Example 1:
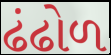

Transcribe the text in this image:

ઢંઢોળ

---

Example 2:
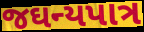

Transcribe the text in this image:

જઘન્યપાત્ર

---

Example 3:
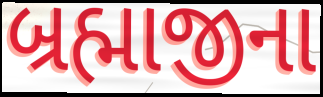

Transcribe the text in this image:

બ્રહ્માજીના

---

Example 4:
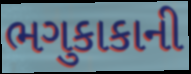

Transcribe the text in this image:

ભગુકાકાની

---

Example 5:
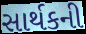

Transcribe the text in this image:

સાર્થકની